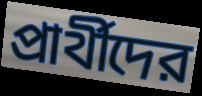
প্রার্থীদের